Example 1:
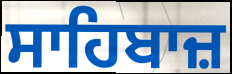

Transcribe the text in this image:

ਸਾਹਿਬਾਜ਼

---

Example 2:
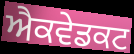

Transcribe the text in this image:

ਐਕਵੇਡਕਟ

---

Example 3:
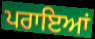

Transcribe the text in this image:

ਪਰਾਇਆਂ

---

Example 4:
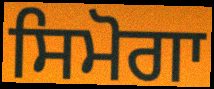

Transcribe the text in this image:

ਸਿਮੋਗਾ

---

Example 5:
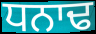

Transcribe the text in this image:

ਧਨਾਢ